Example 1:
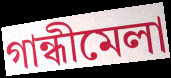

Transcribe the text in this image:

গান্ধীমেলা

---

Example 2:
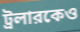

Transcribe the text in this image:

ট্রলারকেও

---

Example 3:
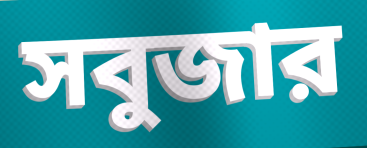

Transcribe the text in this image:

সবুজার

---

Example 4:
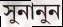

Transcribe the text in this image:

সুনানুন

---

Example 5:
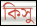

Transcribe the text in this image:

কিসু